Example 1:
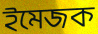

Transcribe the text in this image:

ইমেজক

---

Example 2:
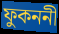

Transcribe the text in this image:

ফুকননী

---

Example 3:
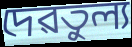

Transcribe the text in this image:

দেৱতুল্য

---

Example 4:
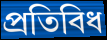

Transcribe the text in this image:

প্ৰতিবিধ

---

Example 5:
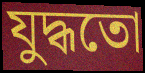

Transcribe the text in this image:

যুদ্ধতো